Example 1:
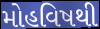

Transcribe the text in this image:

મોહવિષથી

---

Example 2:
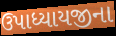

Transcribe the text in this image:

ઉપાધ્યાયજીના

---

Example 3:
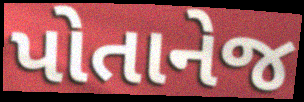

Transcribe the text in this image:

પોતાનેજ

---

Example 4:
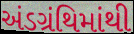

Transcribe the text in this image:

અંડગ્રંથિમાંથી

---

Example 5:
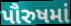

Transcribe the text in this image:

પૌરુષમાં